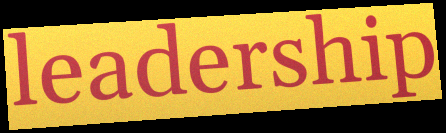
leadership